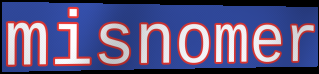
misnomer